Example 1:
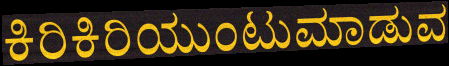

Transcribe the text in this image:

ಕಿರಿಕಿರಿಯುಂಟುಮಾಡುವ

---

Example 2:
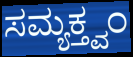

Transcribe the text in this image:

ಸಮ್ಯಕ್ತ್ವಂ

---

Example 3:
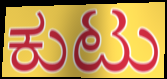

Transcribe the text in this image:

ಕುಟು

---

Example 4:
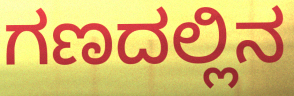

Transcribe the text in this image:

ಗಣದಲ್ಲಿನ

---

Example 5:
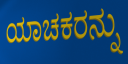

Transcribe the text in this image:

ಯಾಚಕರನ್ನು